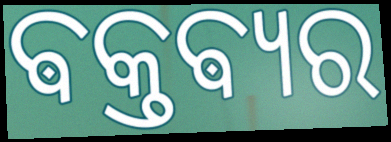
ଵକ୍ତଵ୍ୟର